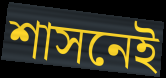
শাসনেই